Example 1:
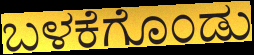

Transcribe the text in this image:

ಬಳಕೆಗೊಂಡು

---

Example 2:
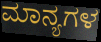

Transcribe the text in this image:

ಮಾನ್ಯಗಳ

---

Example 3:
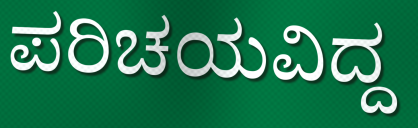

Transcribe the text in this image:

ಪರಿಚಯವಿದ್ದ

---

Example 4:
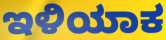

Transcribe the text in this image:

ಇಳಿಯಾಕ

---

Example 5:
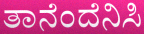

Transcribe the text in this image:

ತಾನೆಂದೆನಿಸಿ